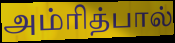
அம்ரித்பால்